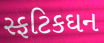
સ્ફટિકઘન